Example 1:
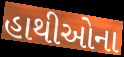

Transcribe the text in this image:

હાથીઓના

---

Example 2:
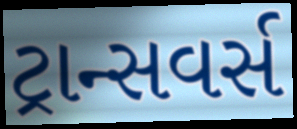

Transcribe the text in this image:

ટ્રાન્સવર્સ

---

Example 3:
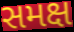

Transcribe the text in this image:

સમક્ષ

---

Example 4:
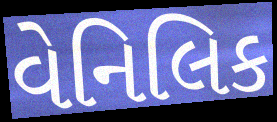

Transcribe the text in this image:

વેનિલિક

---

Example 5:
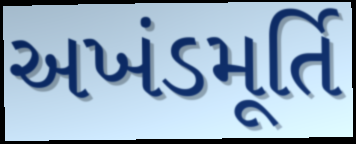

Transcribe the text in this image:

અખંડમૂર્તિ